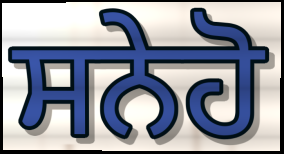
ਸਨੇਹੋ